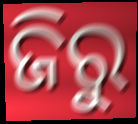
ଜିରୁ